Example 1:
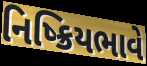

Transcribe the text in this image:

નિષ્ક્રિયભાવે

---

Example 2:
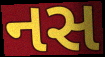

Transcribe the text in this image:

નસ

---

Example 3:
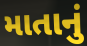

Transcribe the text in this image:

માતાનું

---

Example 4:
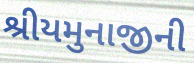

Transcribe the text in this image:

શ્રીયમુનાજીની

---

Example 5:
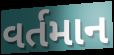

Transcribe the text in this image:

વર્તમાન